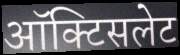
ऑक्टिसलेट